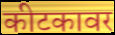
कीटकावर